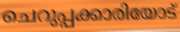
ചെറുപ്പക്കാരിയോട്